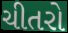
ચીતરો